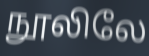
நூலிலே